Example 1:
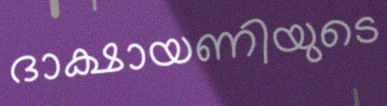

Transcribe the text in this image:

ദാക്ഷായണിയുടെ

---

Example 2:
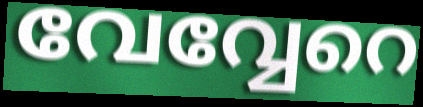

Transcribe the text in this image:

വേവ്വേറെ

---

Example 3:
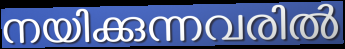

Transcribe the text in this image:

നയിക്കുന്നവരിൽ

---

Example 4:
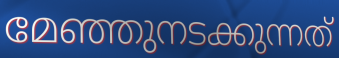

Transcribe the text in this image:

മേഞ്ഞുനടക്കുന്നത്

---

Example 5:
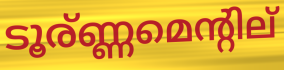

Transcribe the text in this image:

ടൂര്ണ്ണമെന്റില്